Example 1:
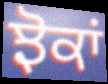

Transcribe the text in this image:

ਝੋਕਾਂ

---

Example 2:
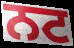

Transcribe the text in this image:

ਨਟ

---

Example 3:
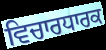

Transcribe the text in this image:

ਵਿਚਾਰਧਾਰਕ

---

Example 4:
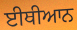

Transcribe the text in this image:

ਈਥੀਆਨ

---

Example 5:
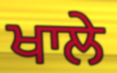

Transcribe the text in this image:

ਖਾਲੇ